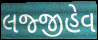
લજ્જીહેવ